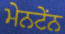
ਮੇਨਟੇਂਨ